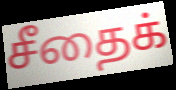
சீதைக்